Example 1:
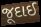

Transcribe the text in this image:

જૂદાઈ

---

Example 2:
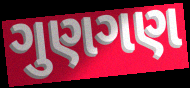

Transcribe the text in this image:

ગુણગણ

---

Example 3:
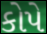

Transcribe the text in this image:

કોપે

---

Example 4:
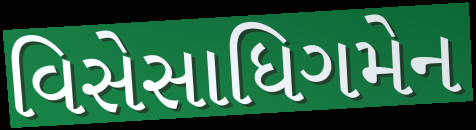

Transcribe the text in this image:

વિસેસાધિગમેન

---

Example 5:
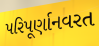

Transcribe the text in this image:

પરિપૂર્ણાનવરત